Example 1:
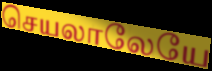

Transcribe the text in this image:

செயலாலேயே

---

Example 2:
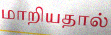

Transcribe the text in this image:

மாறியதால்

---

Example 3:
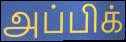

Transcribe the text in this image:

அப்பிக்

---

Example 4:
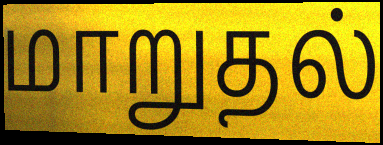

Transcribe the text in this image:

மாறுதல்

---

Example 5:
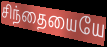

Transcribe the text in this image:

சிந்தையையே